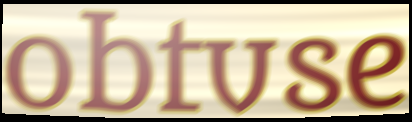
obtuse